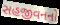
સહજીવનનો